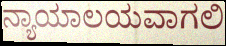
ನ್ಯಾಯಾಲಯವಾಗಲಿ